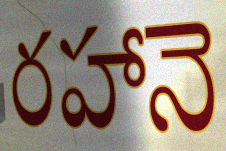
రహానె